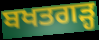
ਬਖਤਗੜ੍ਹ